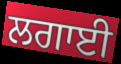
ਲਗਾਈ